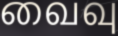
வைவு